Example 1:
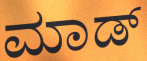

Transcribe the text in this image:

ಮಾಡ್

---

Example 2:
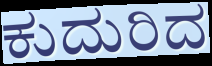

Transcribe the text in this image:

ಕುದುರಿದ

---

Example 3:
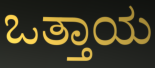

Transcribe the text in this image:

ಒತ್ತಾಯ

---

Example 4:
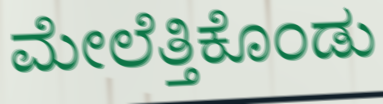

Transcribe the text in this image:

ಮೇಲೆತ್ತಿಕೊಂಡು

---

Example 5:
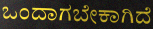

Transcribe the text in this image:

ಒಂದಾಗಬೇಕಾಗಿದೆ